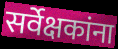
सर्वेक्षकांना